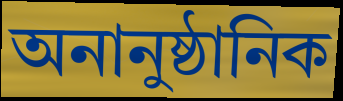
অনানুষ্ঠানিক